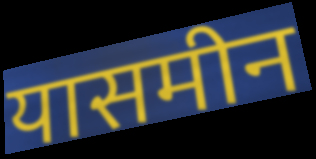
यासमीन